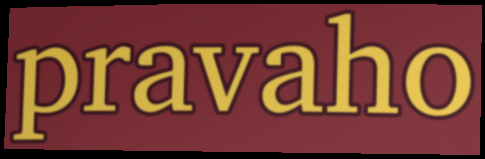
pravaho